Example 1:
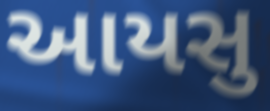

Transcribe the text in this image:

આયસુ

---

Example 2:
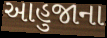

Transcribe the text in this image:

આહુજાના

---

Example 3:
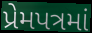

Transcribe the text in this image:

પ્રેમપત્રમાં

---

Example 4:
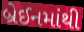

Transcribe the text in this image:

બ્રેઈનમાંથી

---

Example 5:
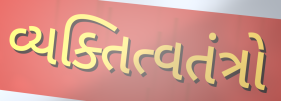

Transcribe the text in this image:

વ્યક્તિત્વતંત્રો